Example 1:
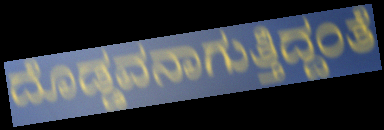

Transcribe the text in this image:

ದೊಡ್ಡವನಾಗುತ್ತಿದ್ದಂತೆ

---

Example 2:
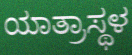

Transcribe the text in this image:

ಯಾತ್ರಾಸ್ಥಳ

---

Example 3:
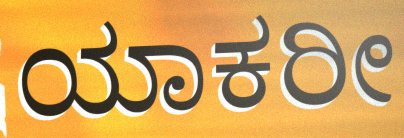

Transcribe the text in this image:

ಯಾಕರೀ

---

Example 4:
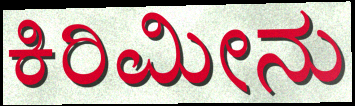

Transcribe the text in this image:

ಕಿರಿಮೀನು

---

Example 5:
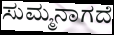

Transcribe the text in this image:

ಸುಮ್ಮನಾಗದೆ